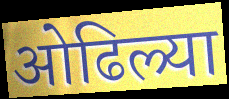
ओढिल्या